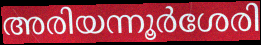
അരിയന്നൂർശേരി